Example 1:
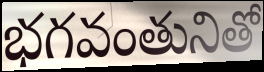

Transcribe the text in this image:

భగవంతునితో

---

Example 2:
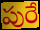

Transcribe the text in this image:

పురే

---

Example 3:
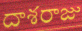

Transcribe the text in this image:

దాశరాజు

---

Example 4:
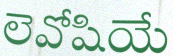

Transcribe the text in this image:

లెవోషియే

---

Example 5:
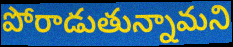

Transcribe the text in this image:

పోరాడుతున్నామని